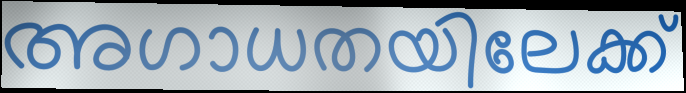
അഗാധതയിലേക്ക്